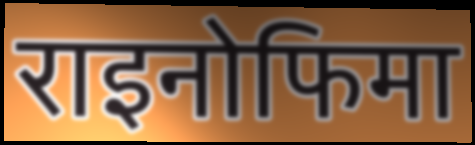
राइनोफिमा